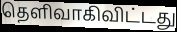
தெளிவாகிவிட்டது